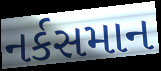
નર્કસમાન